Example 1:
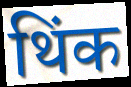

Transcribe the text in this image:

थिंक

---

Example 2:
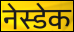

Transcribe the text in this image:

नेस्डेक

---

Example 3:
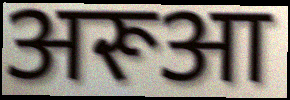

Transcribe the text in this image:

अरूआ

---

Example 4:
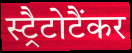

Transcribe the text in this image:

स्ट्रैटोटैंकर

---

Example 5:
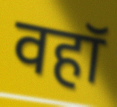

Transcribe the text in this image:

वहॉ